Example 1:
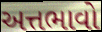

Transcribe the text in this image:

અત્તભાવો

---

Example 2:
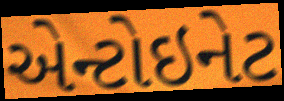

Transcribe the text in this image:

એન્ટોઇનેટ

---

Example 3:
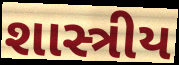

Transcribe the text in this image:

શાસ્ત્રીય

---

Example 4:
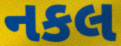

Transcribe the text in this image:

નકલ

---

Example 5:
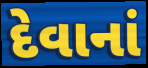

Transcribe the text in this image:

દેવાનાં